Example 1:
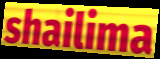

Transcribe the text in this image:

shailima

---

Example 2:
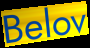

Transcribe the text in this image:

Belov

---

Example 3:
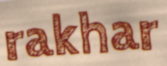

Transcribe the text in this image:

rakhar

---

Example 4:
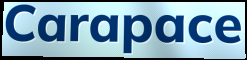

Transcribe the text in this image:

Carapace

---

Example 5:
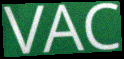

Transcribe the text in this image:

VAC